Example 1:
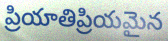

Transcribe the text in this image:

ప్రియాతిప్రియమైన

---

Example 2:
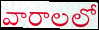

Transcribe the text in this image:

వారాలలో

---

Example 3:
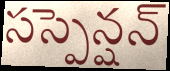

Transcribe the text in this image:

సస్పెన్షన్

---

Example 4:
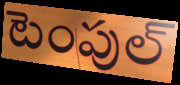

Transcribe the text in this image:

టెంపుల్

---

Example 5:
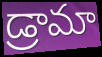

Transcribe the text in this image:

డ్రామా